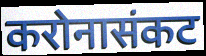
करोनासंकट